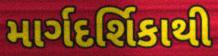
માર્ગદર્શિકાથી